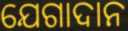
ଯେଗାଦାନ